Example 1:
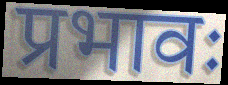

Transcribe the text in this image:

प्रभावः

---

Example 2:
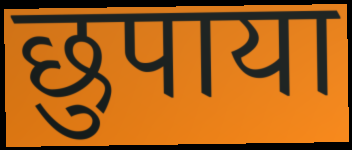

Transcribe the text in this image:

छुपाया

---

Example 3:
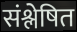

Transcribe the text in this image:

संश्लेषित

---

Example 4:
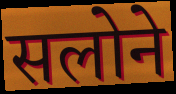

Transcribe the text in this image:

सलोने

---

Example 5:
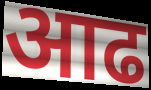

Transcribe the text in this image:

आढ